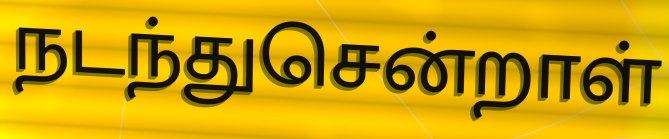
நடந்துசென்றாள்